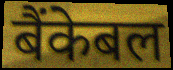
बैंकेबल